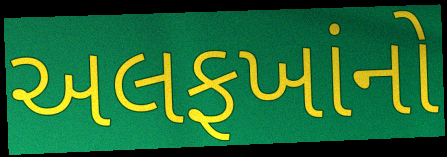
અલફખાંનો